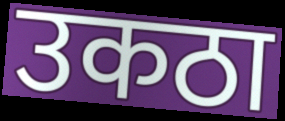
उकठा